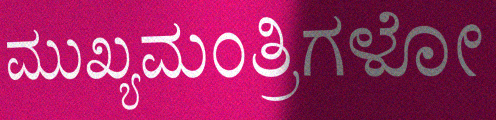
ಮುಖ್ಯಮಂತ್ರಿಗಳೋ